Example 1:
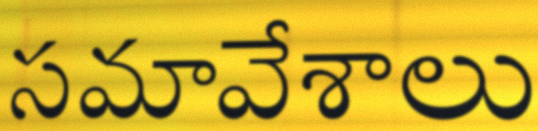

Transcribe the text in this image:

సమావేశాలు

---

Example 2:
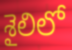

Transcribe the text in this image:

శైలిలో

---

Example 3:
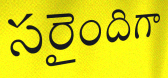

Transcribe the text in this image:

సరైందిగా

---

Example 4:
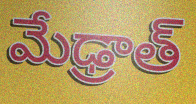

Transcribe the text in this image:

మేఢ్రాత్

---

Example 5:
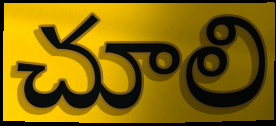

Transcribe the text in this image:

చూలి